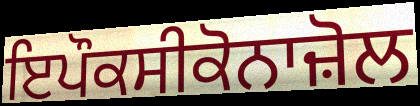
ਇਪੌਕਸੀਕੋਨਾਜ਼ੋਲ